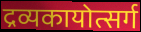
द्रव्यकायोत्सर्ग